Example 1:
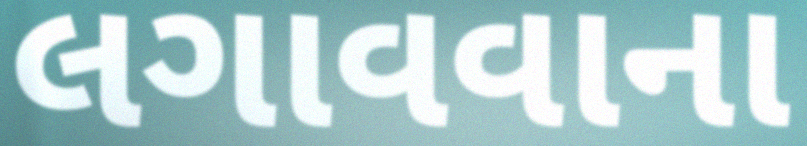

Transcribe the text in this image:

લગાવવાના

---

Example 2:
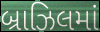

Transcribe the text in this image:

બ્રાઝિલમાં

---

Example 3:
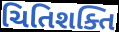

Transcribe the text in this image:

ચિતિશક્તિ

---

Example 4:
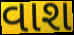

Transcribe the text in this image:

વાશ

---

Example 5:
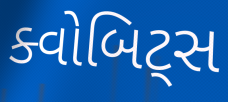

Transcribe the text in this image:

ક્વોબિટ્સ